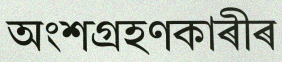
অংশগ্ৰহণকাৰীৰ